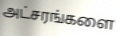
அட்சரங்களை